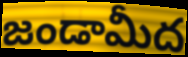
జండామీద